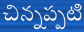
చిన్నప్పటి